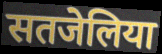
सतजेलिया